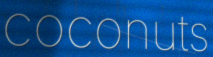
coconuts